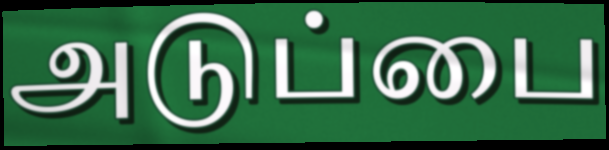
அடுப்பை